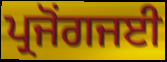
ਪ੍ਰਜੋਂਗਜਈ